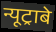
न्यूट्राबे